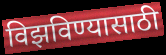
विझविण्यासाठी